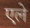
एले